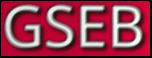
GSEB